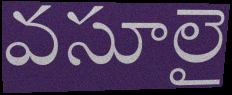
వసూలై